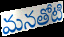
మనతోటి